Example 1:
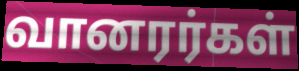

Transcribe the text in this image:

வானரர்கள்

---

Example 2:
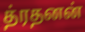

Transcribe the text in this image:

த்ரதனன்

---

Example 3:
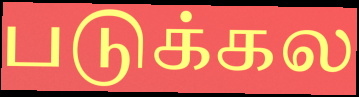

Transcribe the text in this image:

படுக்கல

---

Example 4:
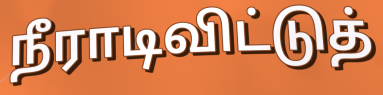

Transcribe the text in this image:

நீராடிவிட்டுத்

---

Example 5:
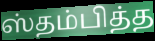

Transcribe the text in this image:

ஸ்தம்பித்த